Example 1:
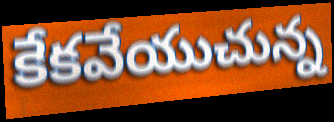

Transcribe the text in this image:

కేకవేయుచున్న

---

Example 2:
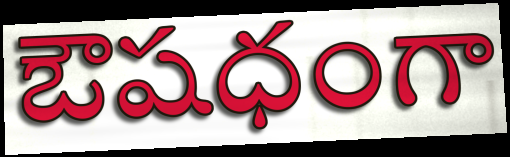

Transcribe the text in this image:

ఔషధంగా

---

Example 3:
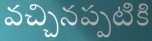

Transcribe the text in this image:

వచ్చినప్పటికి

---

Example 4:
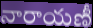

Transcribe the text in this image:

నారాయణీ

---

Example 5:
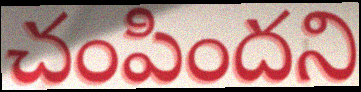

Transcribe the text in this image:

చంపిందని